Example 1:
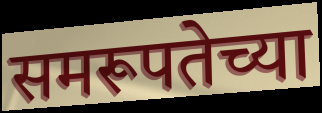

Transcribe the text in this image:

समरूपतेच्या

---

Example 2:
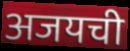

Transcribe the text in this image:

अजयची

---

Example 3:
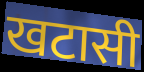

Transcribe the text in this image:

खटासी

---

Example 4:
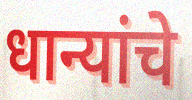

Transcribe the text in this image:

धान्यांचे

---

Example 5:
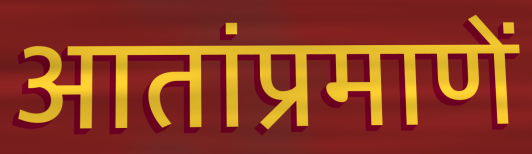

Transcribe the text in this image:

आतांप्रमाणें